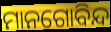
ମାନଗୋବିନ୍ଦ